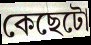
কেছেটো